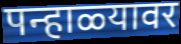
पन्हाळ्यावर